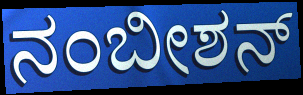
ನಂಬೀಶನ್